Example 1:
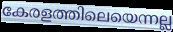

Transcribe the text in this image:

കേരളത്തിലെയെന്നല്ല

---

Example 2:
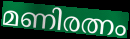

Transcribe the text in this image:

മണിരത്നം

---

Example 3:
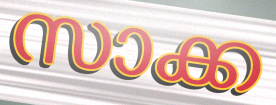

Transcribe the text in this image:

സാക്ക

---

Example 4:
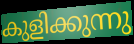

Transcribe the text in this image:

കുളിക്കുന്നു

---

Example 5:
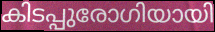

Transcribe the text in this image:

കിടപ്പുരോഗിയായി